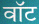
वॉट